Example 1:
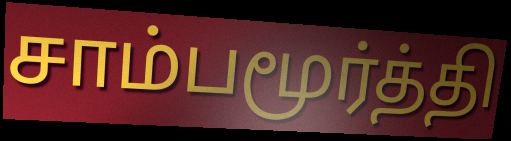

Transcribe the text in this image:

சாம்பமூர்த்தி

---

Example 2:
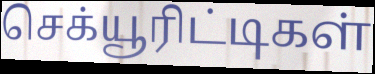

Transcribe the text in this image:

செக்யூரிட்டிகள்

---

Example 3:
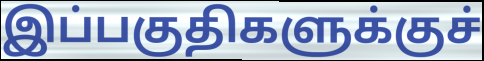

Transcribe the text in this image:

இப்பகுதிகளுக்குச்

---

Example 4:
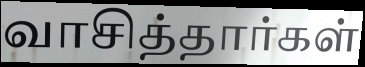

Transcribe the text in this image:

வாசித்தார்கள்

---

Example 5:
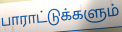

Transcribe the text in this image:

பாராட்டுக்களும்